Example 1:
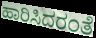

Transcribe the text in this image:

ಹಾರಿಸಿದರಂತೆ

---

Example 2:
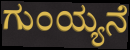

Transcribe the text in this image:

ಗುಂಯ್ಯನೆ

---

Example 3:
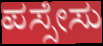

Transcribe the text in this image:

ಪಸ್ಸೇಸು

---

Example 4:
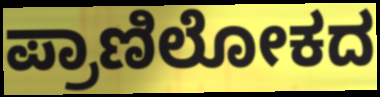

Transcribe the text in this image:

ಪ್ರಾಣಿಲೋಕದ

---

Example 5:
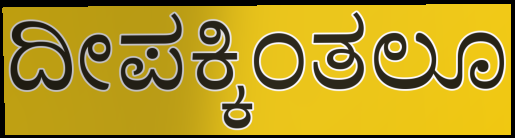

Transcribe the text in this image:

ದೀಪಕ್ಕಿಂತಲೂ